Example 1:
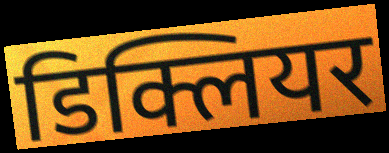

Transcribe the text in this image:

डिक्लियर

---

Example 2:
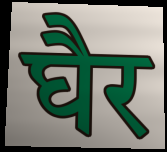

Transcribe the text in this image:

घैर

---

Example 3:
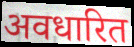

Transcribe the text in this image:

अवधारित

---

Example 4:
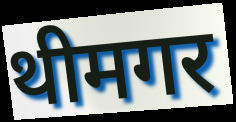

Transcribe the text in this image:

थीमगर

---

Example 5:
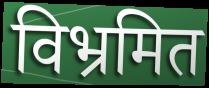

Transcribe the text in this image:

विभ्रमित